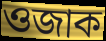
ওজাক